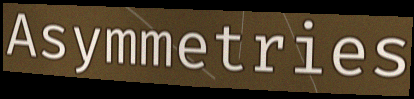
Asymmetries